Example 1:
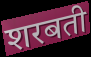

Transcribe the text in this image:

शरबती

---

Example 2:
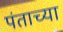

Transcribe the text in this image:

पंताच्या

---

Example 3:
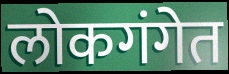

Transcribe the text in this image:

लोकगंगेत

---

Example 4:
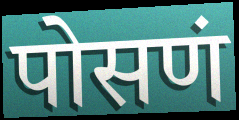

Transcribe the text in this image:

पोसणं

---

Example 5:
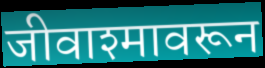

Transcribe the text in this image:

जीवाश्मावरून